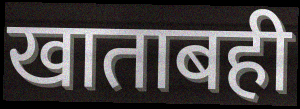
खाताबही